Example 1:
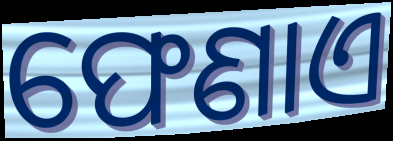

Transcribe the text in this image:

ଫେଣାଏ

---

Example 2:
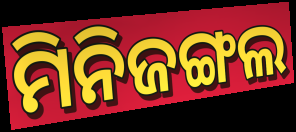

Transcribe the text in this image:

ମିନିଜଙ୍ଗଲ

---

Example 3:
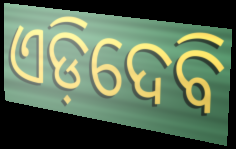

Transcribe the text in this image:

ଏଡ଼ିଦେବି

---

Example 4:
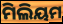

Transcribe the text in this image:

ମିଲିୟମ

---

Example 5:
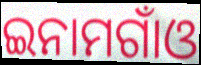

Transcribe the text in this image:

ଇନାମଗାଁଓ